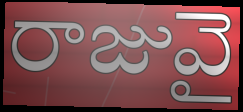
రాజువై